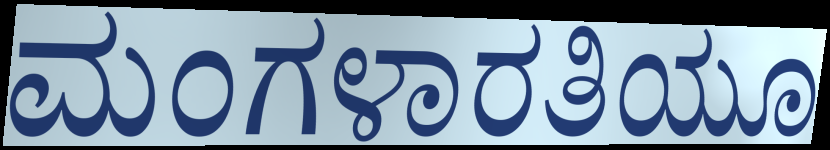
ಮಂಗಳಾರತಿಯೂ